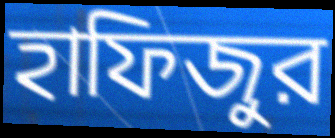
হাফিজুর